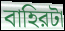
বাহিরটা